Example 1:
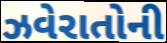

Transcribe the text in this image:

ઝવેરાતોની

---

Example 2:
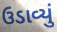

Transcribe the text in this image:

ઉડાવ્યું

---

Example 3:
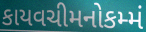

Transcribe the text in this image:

કાયવચીમનોકમ્મં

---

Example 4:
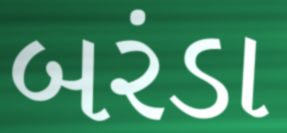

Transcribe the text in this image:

બરંડા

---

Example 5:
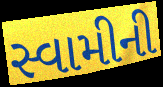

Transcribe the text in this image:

સ્વામીની